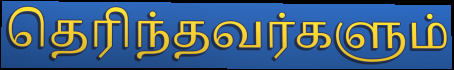
தெரிந்தவர்களும்